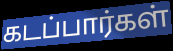
கடப்பார்கள்